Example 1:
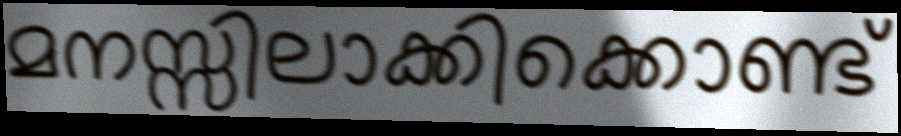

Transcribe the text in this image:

മനസ്സിലാക്കിക്കൊണ്ട്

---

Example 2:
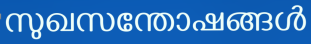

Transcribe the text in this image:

സുഖസന്തോഷങ്ങൾ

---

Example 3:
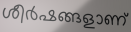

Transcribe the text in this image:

ശീർഷങ്ങളാണ്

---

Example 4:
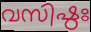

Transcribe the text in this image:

വസിഷ്ഠഃ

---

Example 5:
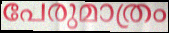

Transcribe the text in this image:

പേരുമാത്രം